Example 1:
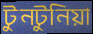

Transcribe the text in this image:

টুনটুনিয়া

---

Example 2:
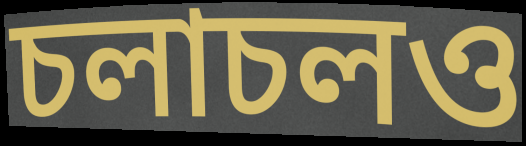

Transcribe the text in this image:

চলাচলও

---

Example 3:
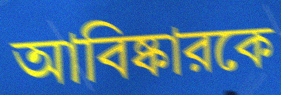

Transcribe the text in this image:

আবিষ্কারকে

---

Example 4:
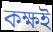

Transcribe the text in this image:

কক্ষই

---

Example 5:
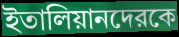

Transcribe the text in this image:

ইতালিয়ানদেরকে